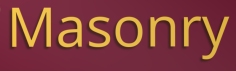
Masonry